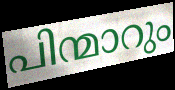
പിന്മാറും